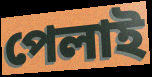
পেলাই